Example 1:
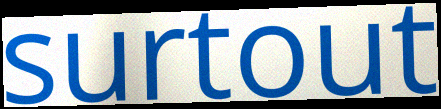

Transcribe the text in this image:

surtout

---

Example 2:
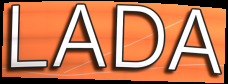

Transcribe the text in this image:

LADA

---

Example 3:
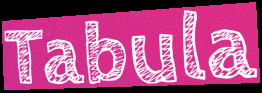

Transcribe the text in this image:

Tabula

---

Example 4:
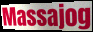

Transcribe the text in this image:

Massajog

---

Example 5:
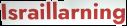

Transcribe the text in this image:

Israillarning